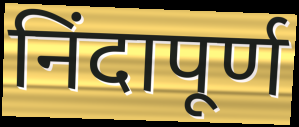
निंदापूर्ण